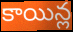
కాయిన్ల